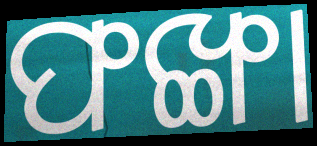
ଫଙ୍ଖା